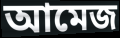
আমেজ